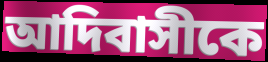
আদিবাসীকে